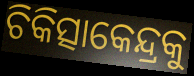
ଚିକିତ୍ସାକେନ୍ଦ୍ରକୁ